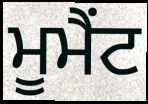
ਮੂਮੈਂਟ